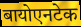
बायोएनटेक